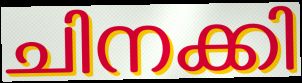
ചിനക്കി